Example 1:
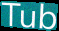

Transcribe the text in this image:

Tub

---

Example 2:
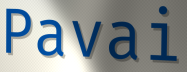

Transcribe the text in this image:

Pavai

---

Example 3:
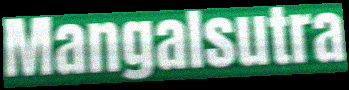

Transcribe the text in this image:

Mangalsutra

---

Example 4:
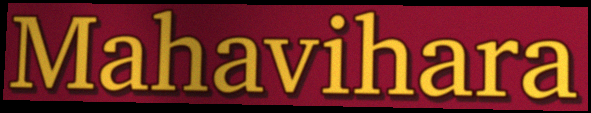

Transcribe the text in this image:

Mahavihara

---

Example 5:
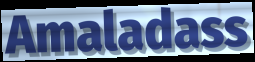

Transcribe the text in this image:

Amaladass